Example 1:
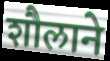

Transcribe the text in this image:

शौलाने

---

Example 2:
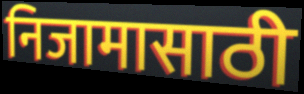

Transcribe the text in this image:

निजामासाठी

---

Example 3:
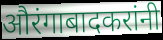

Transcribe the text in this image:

औरंगाबादकरांनी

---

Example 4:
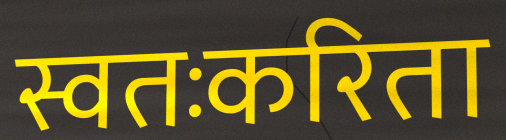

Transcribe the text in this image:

स्वतःकरिता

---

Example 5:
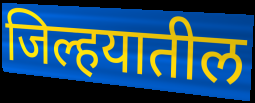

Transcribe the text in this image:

जिल्हयातील